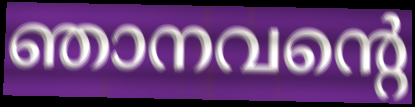
ഞാനവന്റെ